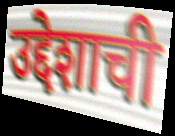
उद्देशाची